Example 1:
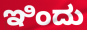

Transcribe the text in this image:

ಇಿಂದು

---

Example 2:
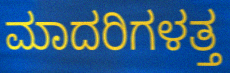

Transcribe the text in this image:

ಮಾದರಿಗಳತ್ತ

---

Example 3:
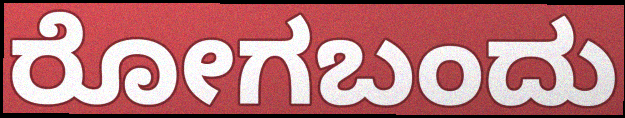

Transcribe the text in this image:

ರೋಗಬಂದು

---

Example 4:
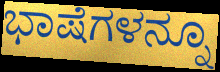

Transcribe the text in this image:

ಭಾಷೆಗಳನ್ನೂ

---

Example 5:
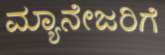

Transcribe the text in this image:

ಮ್ಯಾನೇಜರಿಗೆ